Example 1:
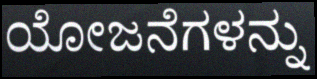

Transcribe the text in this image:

ಯೋಜನೆಗಳನ್ನು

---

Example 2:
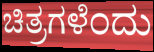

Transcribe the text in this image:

ಚಿತ್ರಗಳೆಂದು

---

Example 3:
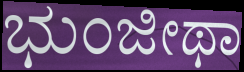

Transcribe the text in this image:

ಭುಂಜೀಥಾ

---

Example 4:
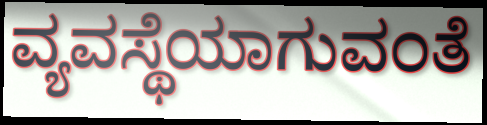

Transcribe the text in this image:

ವ್ಯವಸ್ಥೆಯಾಗುವಂತೆ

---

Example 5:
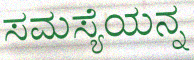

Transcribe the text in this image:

ಸಮಸ್ಯೆಯನ್ನ